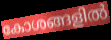
കോശങ്ങളിൽ